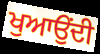
ਖੁਆਉਂਦੀ